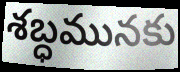
శబ్ధమునకు